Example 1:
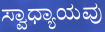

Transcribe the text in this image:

ಸ್ವಾಧ್ಯಾಯವು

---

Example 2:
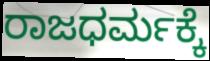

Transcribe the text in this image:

ರಾಜಧರ್ಮಕ್ಕೆ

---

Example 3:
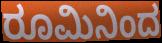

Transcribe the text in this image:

ರೂಮಿನಿಂದ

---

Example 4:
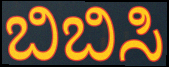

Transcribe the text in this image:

ಬಿಬಿಸಿ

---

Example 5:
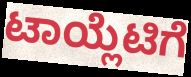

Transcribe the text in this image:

ಟಾಯ್ಲೆಟಿಗೆ